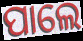
ପାଲେ